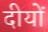
दीयों